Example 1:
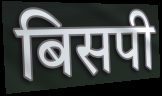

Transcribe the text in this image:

बिसपी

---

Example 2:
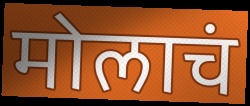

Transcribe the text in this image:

मोलाचं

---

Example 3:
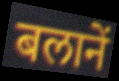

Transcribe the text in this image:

बलानें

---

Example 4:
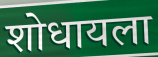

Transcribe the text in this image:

शोधायला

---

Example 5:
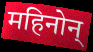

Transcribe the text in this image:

महिनोन्